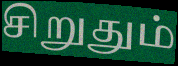
சிறுதும்